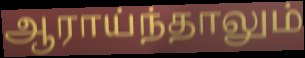
ஆராய்ந்தாலும்